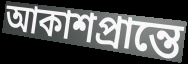
আকাশপ্রান্তে